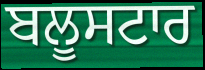
ਬਲੂਸਟਾਰ